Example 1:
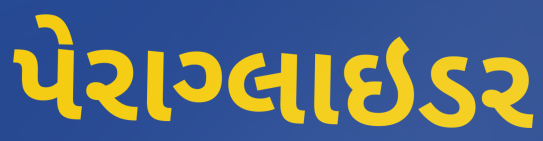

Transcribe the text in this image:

પેરાગ્લાઇડર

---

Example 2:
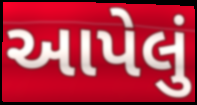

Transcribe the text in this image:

આપેલું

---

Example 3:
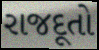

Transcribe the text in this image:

રાજદૂતો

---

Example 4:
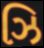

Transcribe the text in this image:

ઝિ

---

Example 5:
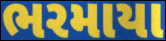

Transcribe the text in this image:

ભરમાયા